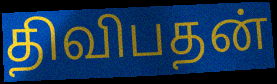
திவிபதன்